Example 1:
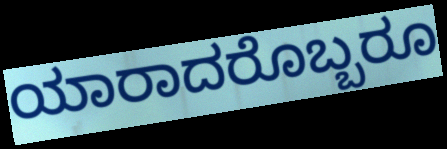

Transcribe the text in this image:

ಯಾರಾದರೊಬ್ಬರೂ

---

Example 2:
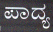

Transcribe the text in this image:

ಪಾದ್ಯ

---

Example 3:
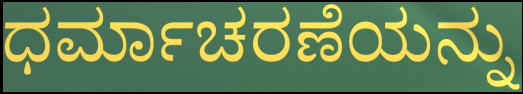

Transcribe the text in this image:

ಧರ್ಮಾಚರಣೆಯನ್ನು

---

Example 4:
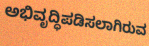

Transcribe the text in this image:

ಅಭಿವೃದ್ಧಿಪಡಿಸಲಾಗಿರುವ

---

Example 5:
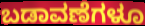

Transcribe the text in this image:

ಬಡಾವಣೆಗಳೂ